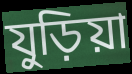
যুড়িয়া